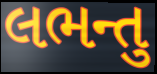
લભન્તુ